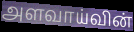
அளவாய்வின்